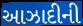
આઝાદીની